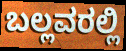
ಬಲ್ಲವರಲ್ಲಿ